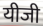
यीजी